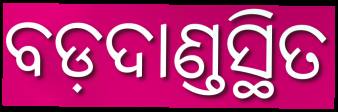
ବଡ଼ଦାଣ୍ଡସ୍ଥିତ